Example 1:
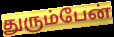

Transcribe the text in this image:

துரும்பேன்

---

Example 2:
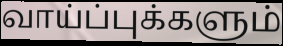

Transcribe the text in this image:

வாய்ப்புக்களும்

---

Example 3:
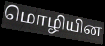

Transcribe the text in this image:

மொழியின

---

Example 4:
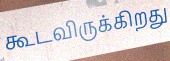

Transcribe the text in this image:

கூடவிருக்கிறது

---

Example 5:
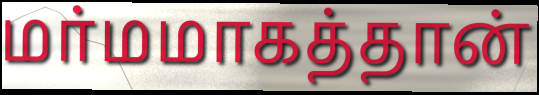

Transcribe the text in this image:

மர்மமாகத்தான்